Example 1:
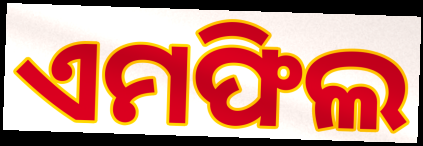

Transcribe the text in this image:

ଏମଫିଲ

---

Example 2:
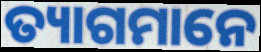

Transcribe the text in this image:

ତ୍ୟାଗମାନେ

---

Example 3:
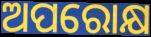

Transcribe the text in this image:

ଅପରୋକ୍ଷ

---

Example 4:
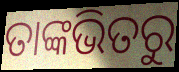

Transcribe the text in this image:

ତାଙ୍କଭିତରୁ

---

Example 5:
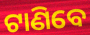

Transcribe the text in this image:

ଟାଣିବେ